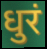
धुरं